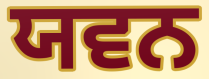
ਯਵਨ